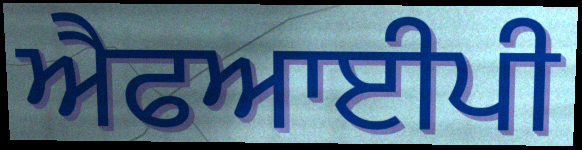
ਐਫਆਈਪੀ